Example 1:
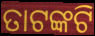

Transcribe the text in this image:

ତାଟଙ୍କଟି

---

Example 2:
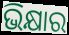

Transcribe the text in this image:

ଭିକ୍ଷାର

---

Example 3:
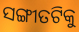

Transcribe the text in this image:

ସଙ୍ଗୀତଟିକୁ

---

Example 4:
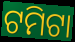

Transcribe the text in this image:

ଟମିଟା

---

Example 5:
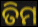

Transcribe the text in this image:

ତିମ